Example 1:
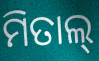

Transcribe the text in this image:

ମିତାଲ୍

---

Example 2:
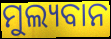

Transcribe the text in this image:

ମୁଲ୍ୟବାନ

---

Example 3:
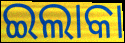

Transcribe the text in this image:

ଇଲାକା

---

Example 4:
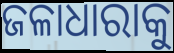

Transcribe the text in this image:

ଜଳାଧାରାକୁ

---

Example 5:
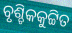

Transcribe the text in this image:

ବୃଶ୍ଚିକକୁଟ୍ଟିତ